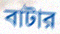
বাটার